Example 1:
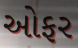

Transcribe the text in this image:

ઓફર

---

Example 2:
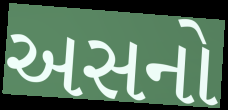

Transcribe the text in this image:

અસનો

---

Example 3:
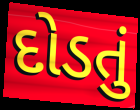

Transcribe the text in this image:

દોડતું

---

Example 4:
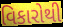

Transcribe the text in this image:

વિકારોથી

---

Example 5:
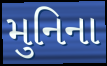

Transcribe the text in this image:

મુનિના